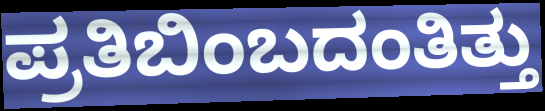
ಪ್ರತಿಬಿಂಬದಂತಿತ್ತು